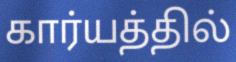
கார்யத்தில்